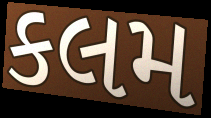
કલમ